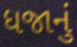
ધજાનું